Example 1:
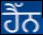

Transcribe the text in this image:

ਹੈੱਨ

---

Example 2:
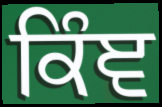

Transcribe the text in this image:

ਕਿੰਞ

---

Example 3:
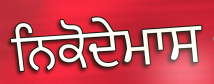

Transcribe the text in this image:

ਨਿਕੋਦੇਮਾਸ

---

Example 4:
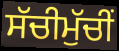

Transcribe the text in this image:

ਸੱਚੀਮੁੱਚੀਂ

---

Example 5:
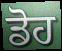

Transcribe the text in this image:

ਡੋਹ